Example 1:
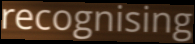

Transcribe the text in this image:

recognising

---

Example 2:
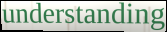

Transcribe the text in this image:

understanding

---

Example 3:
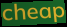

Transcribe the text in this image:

cheap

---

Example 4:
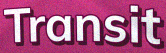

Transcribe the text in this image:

Transit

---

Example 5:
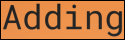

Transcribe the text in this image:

Adding